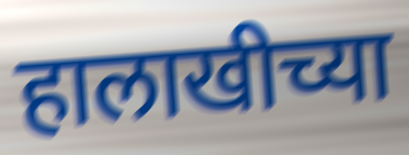
हालाखीच्या